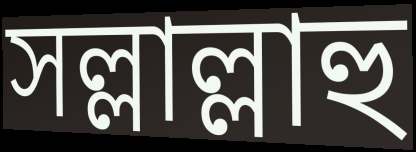
সল্লাল্লাহু